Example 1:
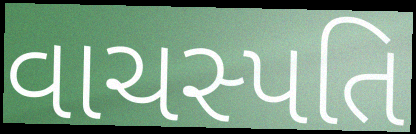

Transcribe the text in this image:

વાચસ્પતિ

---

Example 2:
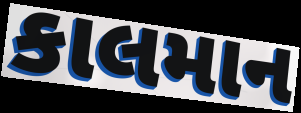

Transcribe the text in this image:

કાલમાન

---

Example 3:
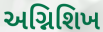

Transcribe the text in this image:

અગ્નિશિખ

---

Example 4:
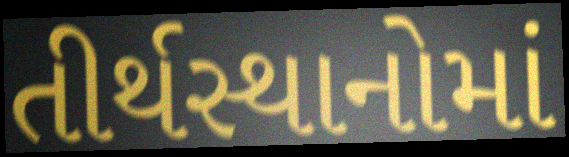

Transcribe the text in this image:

તીર્થસ્થાનોમાં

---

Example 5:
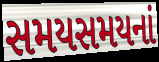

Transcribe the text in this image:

સમયસમયનાં